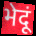
भेदूं